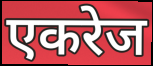
एकरेज